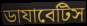
ডাযাবেটিস